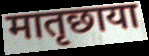
मातृछाया